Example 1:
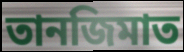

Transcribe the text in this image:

তানজিমাত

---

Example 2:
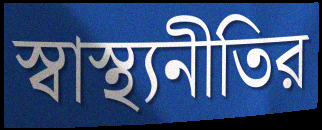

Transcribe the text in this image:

স্বাস্থ্যনীতির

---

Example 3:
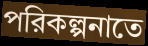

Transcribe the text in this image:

পরিকল্পনাতে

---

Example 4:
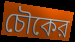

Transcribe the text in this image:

চৌকের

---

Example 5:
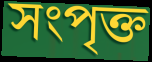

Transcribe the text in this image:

সংপৃক্ত